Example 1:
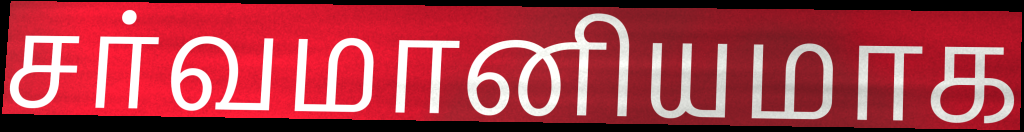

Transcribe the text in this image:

சர்வமானியமாக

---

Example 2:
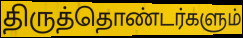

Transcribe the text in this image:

திருத்தொண்டர்களும்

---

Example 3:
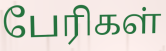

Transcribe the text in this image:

பேரிகள்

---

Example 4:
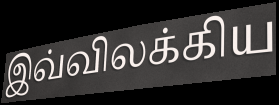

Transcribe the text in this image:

இவ்விலக்கிய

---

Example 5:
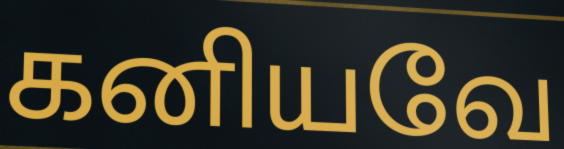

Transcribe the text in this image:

கனியவே